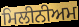
ਮਿਲੀਨੀਅਮ